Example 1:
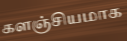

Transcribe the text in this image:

களஞ்சியமாக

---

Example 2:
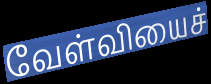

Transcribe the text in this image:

வேள்வியைச்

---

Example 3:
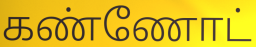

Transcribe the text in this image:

கண்ணோட்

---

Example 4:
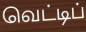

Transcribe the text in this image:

வெட்டிப்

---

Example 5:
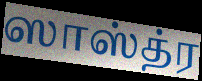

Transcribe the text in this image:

ஸாஸ்த்ர